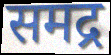
समद्र